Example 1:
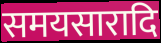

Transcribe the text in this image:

समयसारादि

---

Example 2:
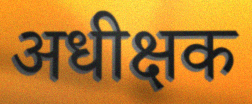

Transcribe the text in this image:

अधीक्षक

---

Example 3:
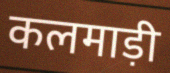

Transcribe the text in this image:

कलमाड़ी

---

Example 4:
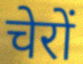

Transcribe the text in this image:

चेरों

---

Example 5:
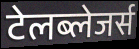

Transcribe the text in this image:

टेलब्लेजर्स